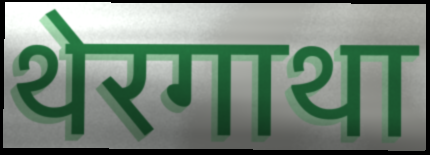
थेरगाथा